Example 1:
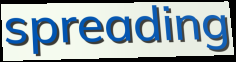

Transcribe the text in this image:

spreading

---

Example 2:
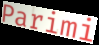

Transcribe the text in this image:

Parimi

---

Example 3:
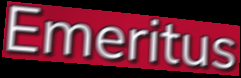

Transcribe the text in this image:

Emeritus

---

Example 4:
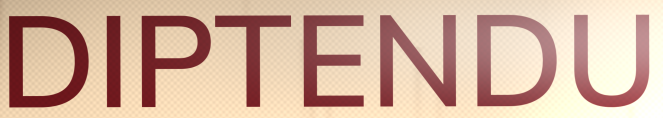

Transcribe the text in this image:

DIPTENDU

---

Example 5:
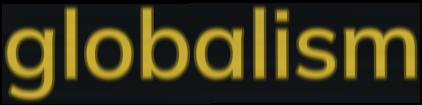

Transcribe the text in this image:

globalism